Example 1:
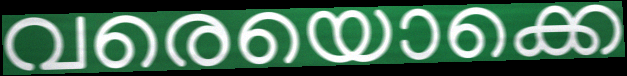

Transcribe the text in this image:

വരെയൊക്കെ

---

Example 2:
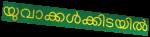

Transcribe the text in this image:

യുവാക്കൾക്കിടയിൽ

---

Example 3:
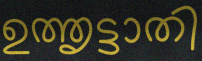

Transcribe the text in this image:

ഉത്തൃട്ടാതി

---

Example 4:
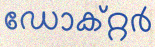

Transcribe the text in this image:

ഡോക്റ്റർ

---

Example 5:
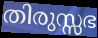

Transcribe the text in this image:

തിരുസ്സഭ